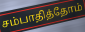
சம்பாதித்தோம்